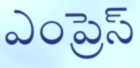
ఎంప్రెస్